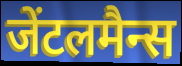
जेंटलमैन्स